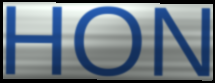
HON